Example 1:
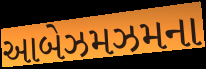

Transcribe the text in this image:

આબેઝમઝમના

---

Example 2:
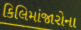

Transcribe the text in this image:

કિલિમાંજારોના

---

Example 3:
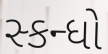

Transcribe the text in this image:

સ્કન્ધો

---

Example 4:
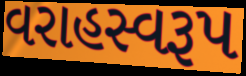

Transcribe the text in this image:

વરાહસ્વરૂપ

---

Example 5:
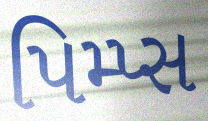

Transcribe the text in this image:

પિમ્પ્સ